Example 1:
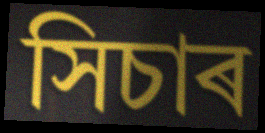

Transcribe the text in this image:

সিচাৰ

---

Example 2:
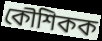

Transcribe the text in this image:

কৌশিকক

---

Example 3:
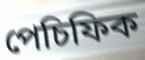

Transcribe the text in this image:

পেচিফিক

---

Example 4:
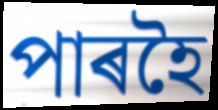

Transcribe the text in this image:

পাৰহৈ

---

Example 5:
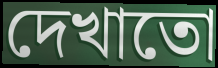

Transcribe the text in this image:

দেখাতো